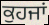
ਕੁਹਜਾਂ